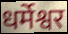
धर्मेश्वर